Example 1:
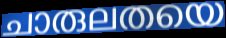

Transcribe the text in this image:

ചാരുലതയെ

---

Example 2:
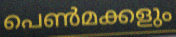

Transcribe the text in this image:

പെൺമക്കളും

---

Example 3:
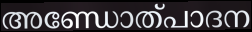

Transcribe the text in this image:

അണ്ഡോത്പാദന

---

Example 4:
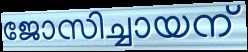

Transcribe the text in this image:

ജോസിച്ചായന്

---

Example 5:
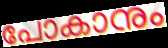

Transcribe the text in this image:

പോകാനും